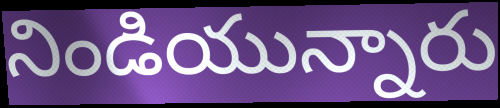
నిండియున్నారు